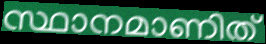
സ്ഥാനമാണിത്